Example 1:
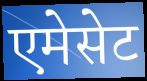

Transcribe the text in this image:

एमेसेट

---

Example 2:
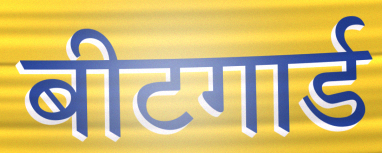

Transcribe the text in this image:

बीटगार्ड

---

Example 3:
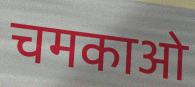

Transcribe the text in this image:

चमकाओ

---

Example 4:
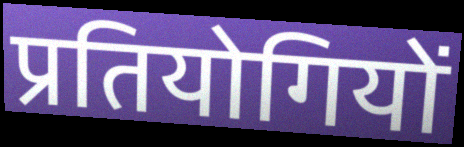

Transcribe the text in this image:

प्रतियोगियों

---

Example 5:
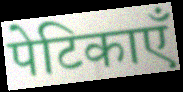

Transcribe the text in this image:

पेटिकाएँ